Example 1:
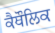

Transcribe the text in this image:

ਕੈਥੌਲਿਕ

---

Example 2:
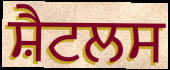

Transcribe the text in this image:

ਸ਼ੈਟਲਸ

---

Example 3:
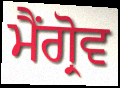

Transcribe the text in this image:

ਮੈਂਗ੍ਰੋਵ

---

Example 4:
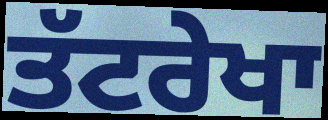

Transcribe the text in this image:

ਤੱਟਰੇਖਾ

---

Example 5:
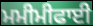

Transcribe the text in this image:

ਮਮੀਮੀਫਾਈ